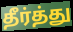
தீர்த்து